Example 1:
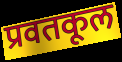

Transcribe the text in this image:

प्रवतकूल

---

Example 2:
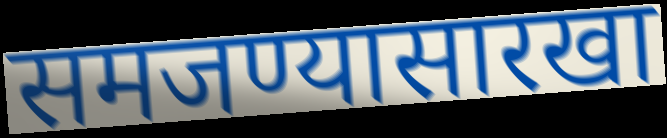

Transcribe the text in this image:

समजण्यासारखा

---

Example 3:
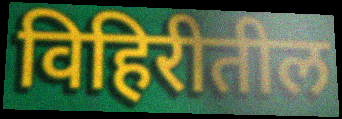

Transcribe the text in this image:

विहिरीतील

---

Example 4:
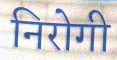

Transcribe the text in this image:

निरोगी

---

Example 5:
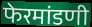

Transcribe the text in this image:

फेरमांडणी